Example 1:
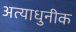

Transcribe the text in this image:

अत्याधुनीक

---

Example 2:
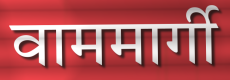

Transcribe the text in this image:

वाममार्गी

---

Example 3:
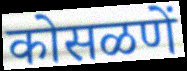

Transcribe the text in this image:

कोसळणें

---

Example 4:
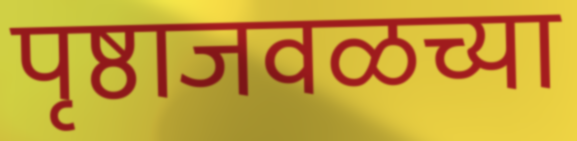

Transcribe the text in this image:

पृष्ठाजवळच्या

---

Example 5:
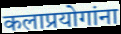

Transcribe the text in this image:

कलाप्रयोगांना